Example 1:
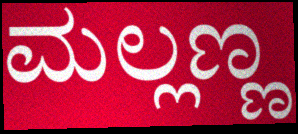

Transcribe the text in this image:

ಮಲ್ಲಣ್ಣ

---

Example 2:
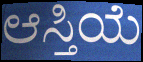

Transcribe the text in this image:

ಆಸ್ತಿಯೆ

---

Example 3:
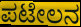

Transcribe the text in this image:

ಪಟೇಲನ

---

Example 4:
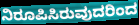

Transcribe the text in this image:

ನಿರೂಪಿಸಿರುವುದರಿಂದ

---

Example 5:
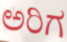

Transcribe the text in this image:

ಅರಿಗ